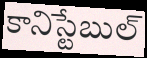
కానిస్టేబుల్